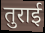
तुराई